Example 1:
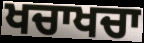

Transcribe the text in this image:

ਖਚਾਖਚਾ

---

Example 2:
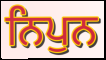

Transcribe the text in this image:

ਨਿਪੁਨ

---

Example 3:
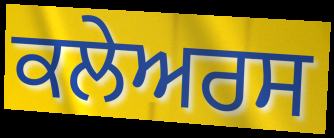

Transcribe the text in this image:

ਕਲੇਅਰਸ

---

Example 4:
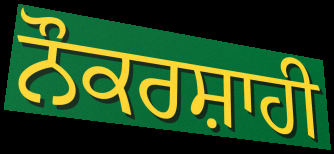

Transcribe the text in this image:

ਨੌਕਰਸ਼ਾਹੀ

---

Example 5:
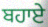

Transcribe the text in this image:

ਬਹਾਏ